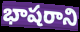
భాషరాని